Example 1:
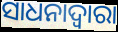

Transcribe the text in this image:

ସାଧନାଦ୍ଵାରା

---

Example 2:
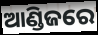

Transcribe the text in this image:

ଆଣ୍ଡିଜରେ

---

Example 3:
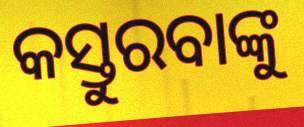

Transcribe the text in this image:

କସ୍ତୁରବାଙ୍କୁ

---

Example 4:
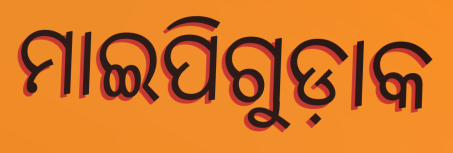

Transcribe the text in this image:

ମାଇପିଗୁଡ଼ାକ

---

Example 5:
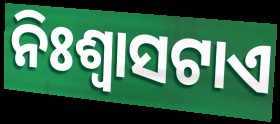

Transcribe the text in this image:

ନିଃଶ୍ଵାସଟାଏ